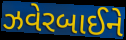
ઝવેરબાઈને